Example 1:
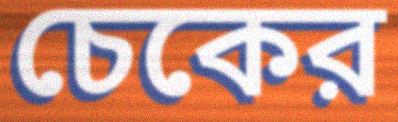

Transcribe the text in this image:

চেকের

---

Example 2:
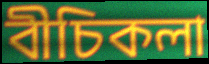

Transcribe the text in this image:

বীচিকলা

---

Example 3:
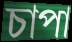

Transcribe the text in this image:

চাপা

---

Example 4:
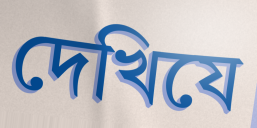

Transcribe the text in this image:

দেখিযে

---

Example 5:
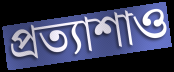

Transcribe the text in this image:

প্রত্যাশাও